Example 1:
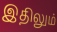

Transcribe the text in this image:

இதிலும்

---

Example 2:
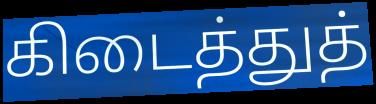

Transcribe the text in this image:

கிடைத்துத்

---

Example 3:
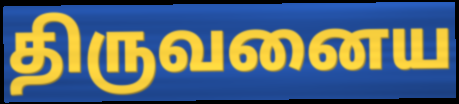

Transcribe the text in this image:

திருவனைய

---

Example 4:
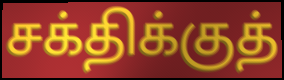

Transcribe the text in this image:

சக்திக்குத்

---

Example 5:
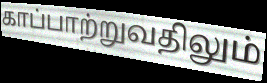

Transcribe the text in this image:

காப்பாற்றுவதிலும்